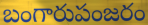
బంగారుపంజరం